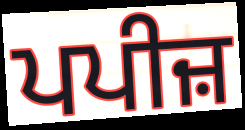
ਪਪੀਜ਼